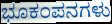
ಭೂಕಂಪನಗಳು